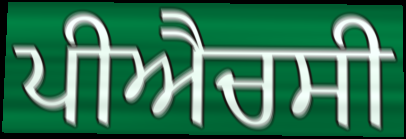
ਪੀਐਚਸੀ